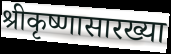
श्रीकृष्णासारख्या